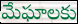
మేఘాలకు